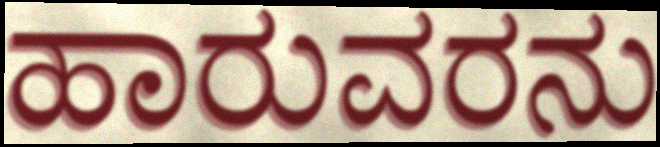
ಹಾರುವರನು